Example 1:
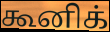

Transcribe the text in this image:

கூனிக்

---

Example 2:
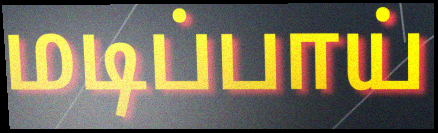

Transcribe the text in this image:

மடிப்பாய்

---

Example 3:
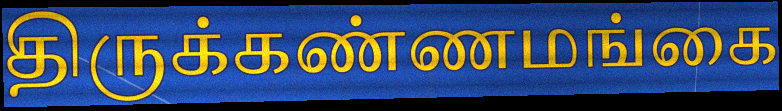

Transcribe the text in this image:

திருக்கண்ணமங்கை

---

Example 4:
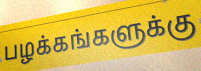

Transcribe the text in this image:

பழக்கங்களுக்கு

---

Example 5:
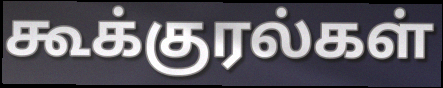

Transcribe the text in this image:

கூக்குரல்கள்